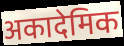
अकादेमिक